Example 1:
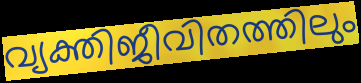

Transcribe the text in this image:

വ്യക്തിജീവിതത്തിലും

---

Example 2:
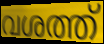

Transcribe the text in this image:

വശത്ത്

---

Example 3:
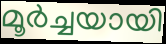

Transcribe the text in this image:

മൂർച്ചയായി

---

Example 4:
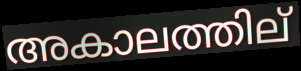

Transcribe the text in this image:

അകാലത്തില്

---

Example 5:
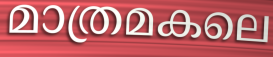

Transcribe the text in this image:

മാത്രമകലെ